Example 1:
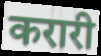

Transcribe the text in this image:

करारी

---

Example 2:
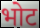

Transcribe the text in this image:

भोट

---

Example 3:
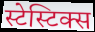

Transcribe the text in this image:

स्टेस्टिक्स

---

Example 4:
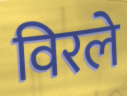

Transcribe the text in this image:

विरले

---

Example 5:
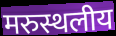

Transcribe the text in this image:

मरुस्थलीय